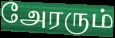
அேரரும்